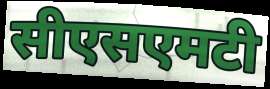
सीएसएमटी